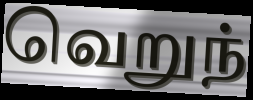
வெறுந்